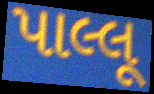
પાલ્લૂ